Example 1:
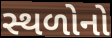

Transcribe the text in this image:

સ્થળોનો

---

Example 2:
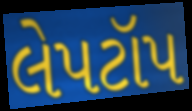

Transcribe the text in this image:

લેપટૉપ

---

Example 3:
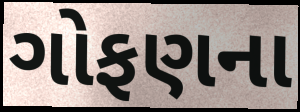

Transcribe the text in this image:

ગોફણના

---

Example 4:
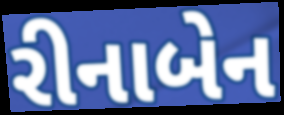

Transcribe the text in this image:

રીનાબેન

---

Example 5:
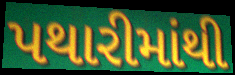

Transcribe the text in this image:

પથારીમાંથી